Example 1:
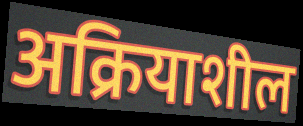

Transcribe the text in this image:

अक्रियाशील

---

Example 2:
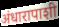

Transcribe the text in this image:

अंधारापाशी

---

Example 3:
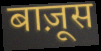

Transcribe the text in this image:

बाज़ूस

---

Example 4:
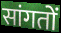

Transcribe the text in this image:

सांगतों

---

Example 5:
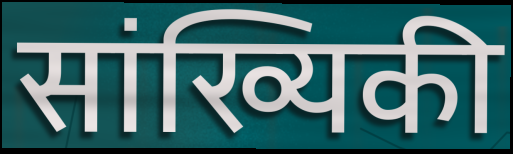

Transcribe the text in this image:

सांख्यिकी